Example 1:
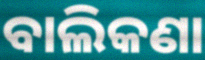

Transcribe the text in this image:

ବାଲିକଣା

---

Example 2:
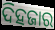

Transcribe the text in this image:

ଦିହଜାର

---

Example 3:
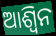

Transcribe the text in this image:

ଆଶ୍ୱିନ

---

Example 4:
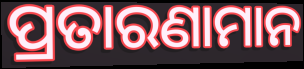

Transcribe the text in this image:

ପ୍ରତାରଣାମାନ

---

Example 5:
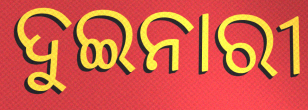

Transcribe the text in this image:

ଦୁଇନାରୀ